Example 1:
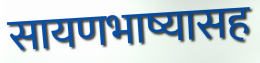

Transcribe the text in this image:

सायणभाष्यासह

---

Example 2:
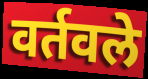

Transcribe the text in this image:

वर्तवले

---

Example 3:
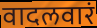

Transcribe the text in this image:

वादलवारं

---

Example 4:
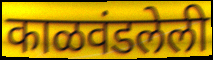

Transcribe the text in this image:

काळवंडलेली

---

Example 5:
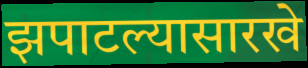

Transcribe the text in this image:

झपाटल्यासारखे